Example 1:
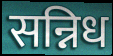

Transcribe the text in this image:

सन्निध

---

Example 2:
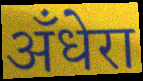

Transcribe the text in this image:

अँधेरा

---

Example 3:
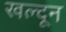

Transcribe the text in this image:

खल्दून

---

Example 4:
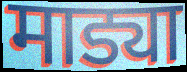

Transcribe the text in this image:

माड्या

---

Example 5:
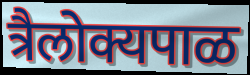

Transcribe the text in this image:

त्रैलोक्यपाळ